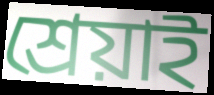
শ্ৰেয়াই